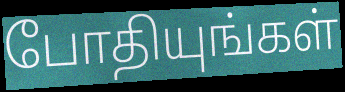
போதியுங்கள்